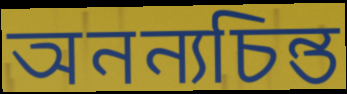
অনন্যচিন্ত